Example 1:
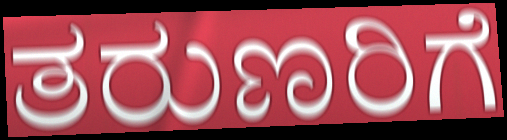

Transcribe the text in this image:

ತರುಣರಿಗೆ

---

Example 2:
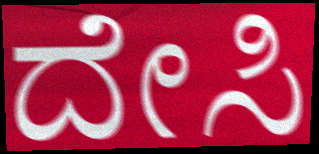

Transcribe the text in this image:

ದೇಸಿ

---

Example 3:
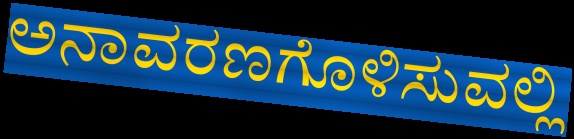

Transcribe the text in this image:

ಅನಾವರಣಗೊಳಿಸುವಲ್ಲಿ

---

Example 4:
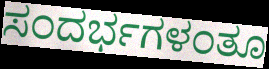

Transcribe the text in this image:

ಸಂದರ್ಭಗಳಂತೂ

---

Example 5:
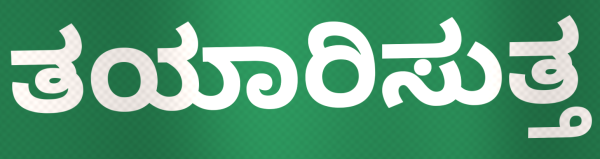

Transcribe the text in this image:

ತಯಾರಿಸುತ್ತ